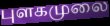
புளகமுலை